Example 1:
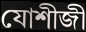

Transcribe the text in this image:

যোশীজী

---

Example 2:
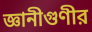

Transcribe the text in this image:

জ্ঞানীগুণীর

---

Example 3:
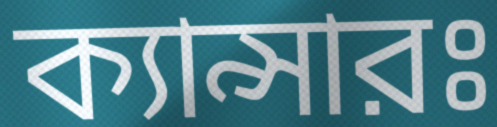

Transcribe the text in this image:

ক্যান্সারঃ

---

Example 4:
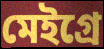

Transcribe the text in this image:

মেইগ্রে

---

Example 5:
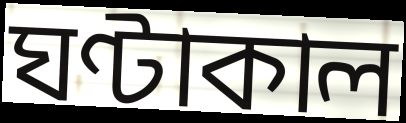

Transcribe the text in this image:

ঘণ্টাকাল